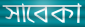
সাবেকা